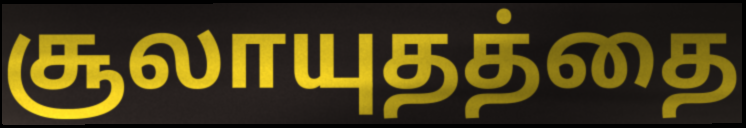
சூலாயுதத்தை